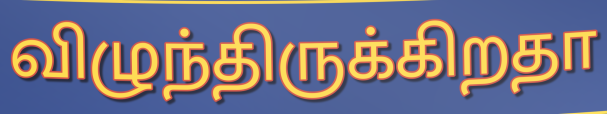
விழுந்திருக்கிறதா